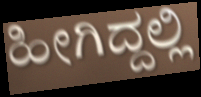
ಹೀಗಿದ್ದಲ್ಲಿ